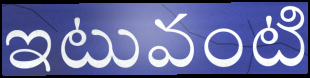
ఇటువంటి